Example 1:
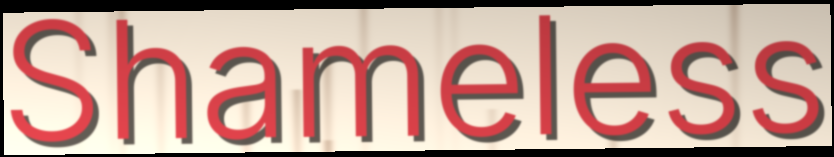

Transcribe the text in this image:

Shameless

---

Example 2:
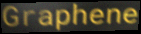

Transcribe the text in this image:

Graphene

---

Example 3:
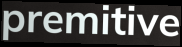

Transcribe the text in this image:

premitive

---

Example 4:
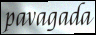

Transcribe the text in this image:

pavagada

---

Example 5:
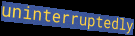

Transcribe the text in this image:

uninterruptedly